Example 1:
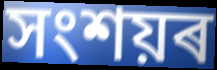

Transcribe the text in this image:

সংশয়ৰ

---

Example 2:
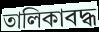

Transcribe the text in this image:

তালিকাবদ্ধ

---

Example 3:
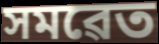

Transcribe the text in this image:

সমৱেত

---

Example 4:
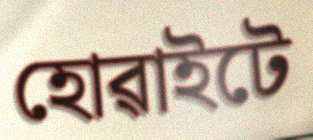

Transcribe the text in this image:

হোৱাইটে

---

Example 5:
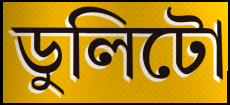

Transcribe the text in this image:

ডুলিটো